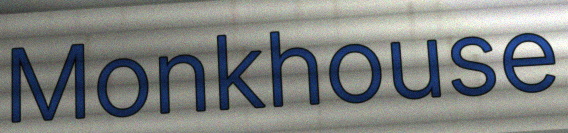
Monkhouse